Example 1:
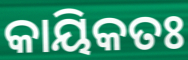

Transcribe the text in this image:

କାୟିକତଃ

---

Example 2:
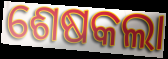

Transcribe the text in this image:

ଶେଷକଲା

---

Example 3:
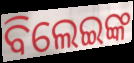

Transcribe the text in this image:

ବିଲେଇଙ୍କ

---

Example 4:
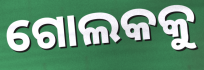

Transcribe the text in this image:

ଗୋଲକକୁ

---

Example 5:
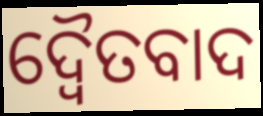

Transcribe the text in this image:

ଦ୍ୱୈତବାଦ